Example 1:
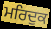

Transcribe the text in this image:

ਮਰਿਦੁਕ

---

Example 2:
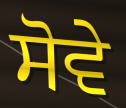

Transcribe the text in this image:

ਸੋਵੇ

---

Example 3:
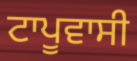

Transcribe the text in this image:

ਟਾਪੂਵਾਸੀ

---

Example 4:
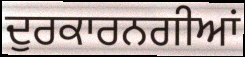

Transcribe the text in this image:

ਦੁਰਕਾਰਨਗੀਆਂ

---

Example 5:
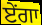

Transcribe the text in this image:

ਏਂਗਾ